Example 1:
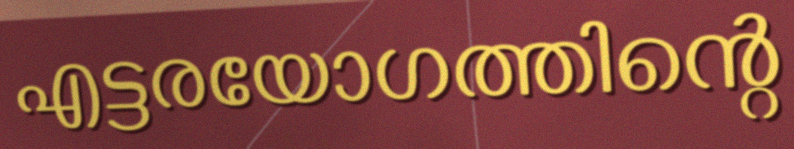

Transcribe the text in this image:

എട്ടരയോഗത്തിന്റെ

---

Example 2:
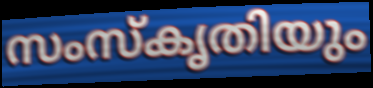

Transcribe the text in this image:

സംസ്കൃതിയും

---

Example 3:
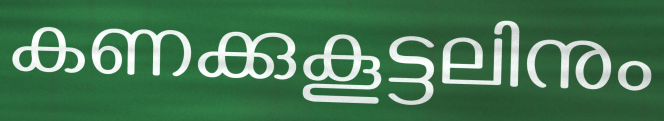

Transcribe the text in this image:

കണക്കുകൂട്ടലിനും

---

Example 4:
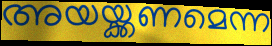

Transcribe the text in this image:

അയയ്ക്കണമെന്ന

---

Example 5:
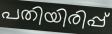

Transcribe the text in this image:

പതിയിരിപ്പ്